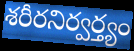
శరీరనిర్వర్త్యం